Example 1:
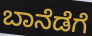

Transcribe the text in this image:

ಬಾನೆಡೆಗೆ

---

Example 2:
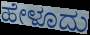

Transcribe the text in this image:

ಹೇಳೂದು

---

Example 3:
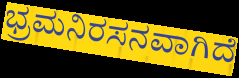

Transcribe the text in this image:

ಭ್ರಮನಿರಸನವಾಗಿದೆ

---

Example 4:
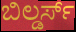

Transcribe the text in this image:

ಬಿಲ್ಡರ್ಸ್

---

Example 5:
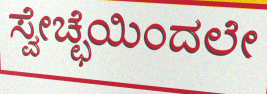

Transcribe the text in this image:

ಸ್ವೇಚ್ಛೆಯಿಂದಲೇ